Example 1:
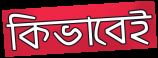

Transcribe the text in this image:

কিভাবেই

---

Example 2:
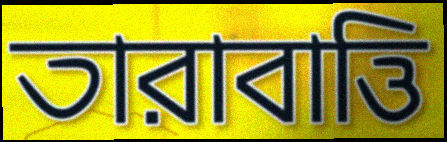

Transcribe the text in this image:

তারাবাত্তি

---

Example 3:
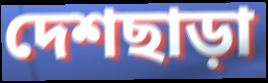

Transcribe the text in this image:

দেশছাড়া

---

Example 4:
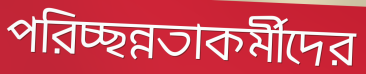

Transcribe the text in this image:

পরিচ্ছন্নতাকর্মীদের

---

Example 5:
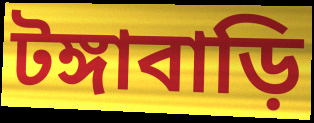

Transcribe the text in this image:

টঙ্গাবাড়ি